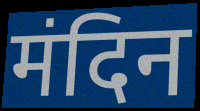
मंदिन